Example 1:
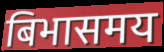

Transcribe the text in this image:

बिभासमय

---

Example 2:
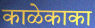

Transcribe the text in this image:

काळेकाका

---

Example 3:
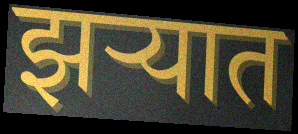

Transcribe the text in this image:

झर्‍यात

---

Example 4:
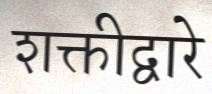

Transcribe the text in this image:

शक्तीद्वारे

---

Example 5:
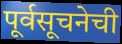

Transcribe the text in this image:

पूर्वसूचनेची